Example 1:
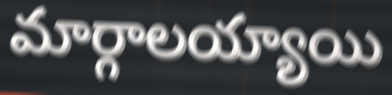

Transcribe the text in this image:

మార్గాలయ్యాయి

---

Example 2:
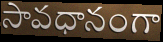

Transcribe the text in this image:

సావధానంగా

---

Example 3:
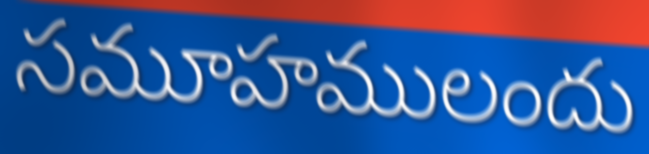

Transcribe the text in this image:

సమూహములందు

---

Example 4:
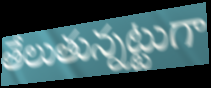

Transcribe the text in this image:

తేలుతున్నట్టుగా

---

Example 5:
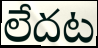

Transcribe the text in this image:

లేదట